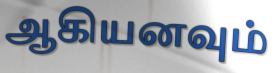
ஆகியனவும்